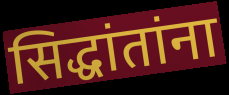
सिद्धांतांना